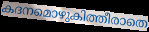
കദനമൊഴുകിത്തീരാതെ